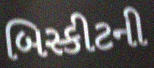
બિસ્કીટની